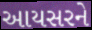
આયસરને